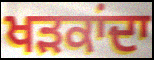
ਖੜਕਾਂਦਾ